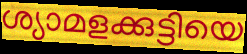
ശ്യാമളക്കുട്ടിയെ